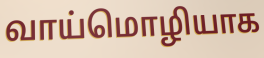
வாய்மொழியாக